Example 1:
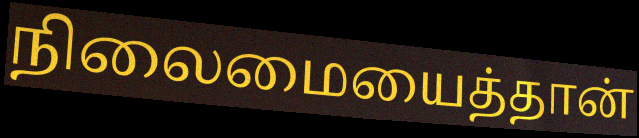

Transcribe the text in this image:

நிலைமையைத்தான்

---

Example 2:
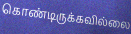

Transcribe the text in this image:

கொண்டிருக்கவில்லை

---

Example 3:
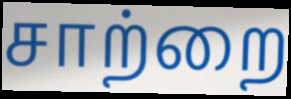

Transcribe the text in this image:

சாற்றை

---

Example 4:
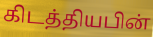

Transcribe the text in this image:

கிடத்தியபின்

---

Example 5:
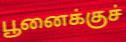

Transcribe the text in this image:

பூனைக்குச்